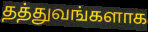
தத்துவங்களாக